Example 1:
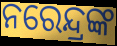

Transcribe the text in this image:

ନରେନ୍ଦ୍ରଙ୍କ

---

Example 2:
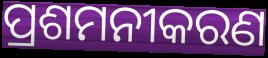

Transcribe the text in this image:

ପ୍ରଶମନୀକରଣ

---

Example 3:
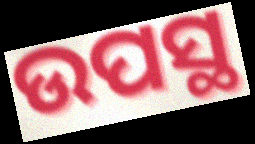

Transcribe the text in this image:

ଉପସ୍ଥ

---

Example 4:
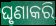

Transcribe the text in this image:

ଘୃଣାକରି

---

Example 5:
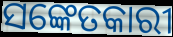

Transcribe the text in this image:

ସଙ୍କେତକାରୀ